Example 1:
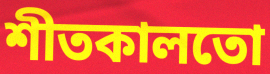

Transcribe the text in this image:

শীতকালতো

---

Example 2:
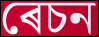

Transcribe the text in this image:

ৰেচন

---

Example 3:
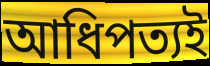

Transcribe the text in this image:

আধিপত্যই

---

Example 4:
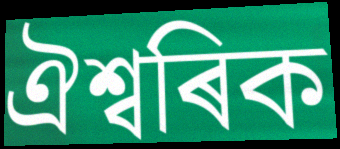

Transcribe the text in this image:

ঐশ্বৰিক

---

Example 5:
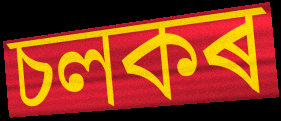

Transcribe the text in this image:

চলকৰ